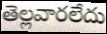
తెల్లవారలేదు